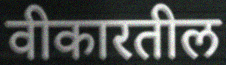
वीकारतील